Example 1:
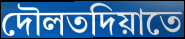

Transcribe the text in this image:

দৌলতদিয়াতে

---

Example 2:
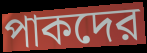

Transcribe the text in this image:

পাকদের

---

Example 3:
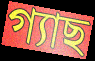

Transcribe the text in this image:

গ্যাছ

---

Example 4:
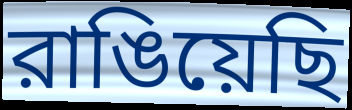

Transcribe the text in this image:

রাঙিয়েছি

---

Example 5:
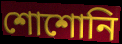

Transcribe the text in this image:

শোশোনি